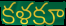
కళకూ